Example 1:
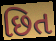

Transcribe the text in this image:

છિત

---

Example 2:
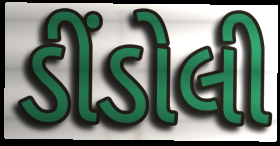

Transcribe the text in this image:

ડીંડોલી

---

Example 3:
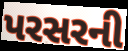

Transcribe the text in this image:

પરસરની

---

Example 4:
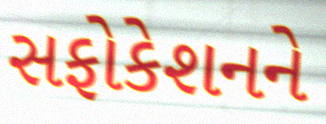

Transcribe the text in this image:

સફોકેશનને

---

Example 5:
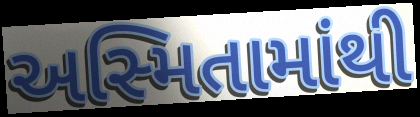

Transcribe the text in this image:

અસ્મિતામાંથી